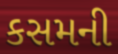
કસમની